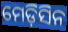
ମେଡ଼ିସିନ